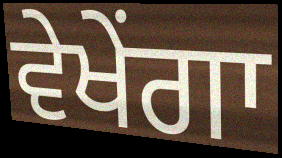
ਵੇਖੇਂਗਾ